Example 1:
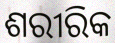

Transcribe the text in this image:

ଶରୀରିକ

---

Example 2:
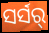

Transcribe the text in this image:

ସର୍ସର୍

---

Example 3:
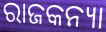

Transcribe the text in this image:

ରାଜକନ୍ୟା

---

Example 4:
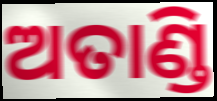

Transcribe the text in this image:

ଅତାଣ୍ଡି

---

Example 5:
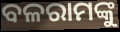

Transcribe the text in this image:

ବଳରାମଙ୍କୁ